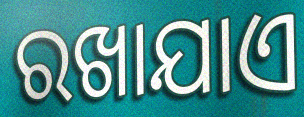
ରଖାଯାଏ